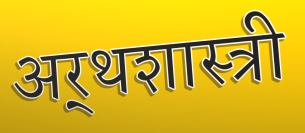
अर्थशास्त्री